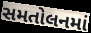
સમતોલનમાં